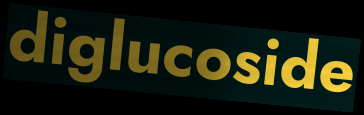
diglucoside